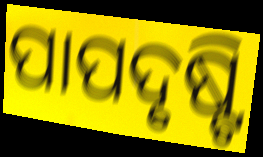
ପାପଦୃଷ୍ଟି